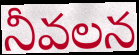
నీవలన